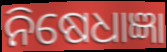
ନିଷେଧାଜ୍ଞା